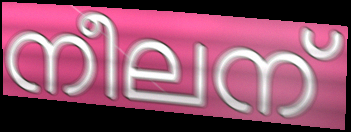
നീലന്